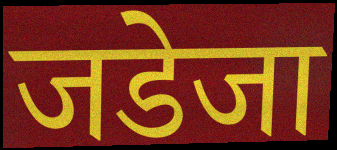
जडेजा